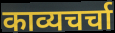
काव्यचर्चा